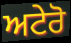
ਅਟੇਰੋ